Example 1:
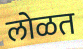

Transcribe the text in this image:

लोळत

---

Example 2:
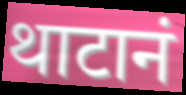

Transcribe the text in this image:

थाटानं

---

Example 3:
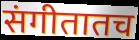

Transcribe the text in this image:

संगीतातच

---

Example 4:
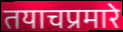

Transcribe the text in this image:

तयाचप्रमारे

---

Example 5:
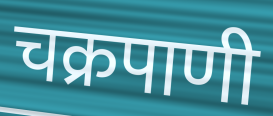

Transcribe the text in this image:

चक्रपाणी